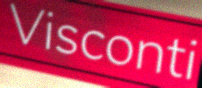
Visconti